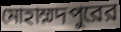
মোহাম্মদপুরের